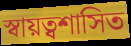
স্বায়ত্বশাসিত